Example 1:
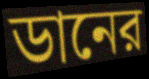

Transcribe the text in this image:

ডানের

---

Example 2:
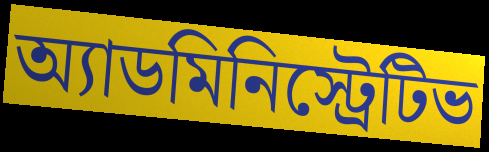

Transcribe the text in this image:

অ্যাডমিনিস্ট্রেটিভ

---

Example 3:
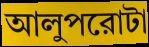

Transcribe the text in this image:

আলুপরোটা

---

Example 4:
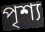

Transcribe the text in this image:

পৃশ্য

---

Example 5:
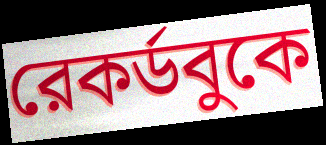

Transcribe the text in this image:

রেকর্ডবুকে